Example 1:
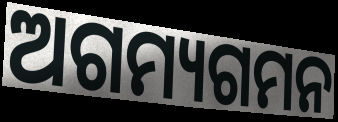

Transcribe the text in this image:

ଅଗମ୍ୟଗମନ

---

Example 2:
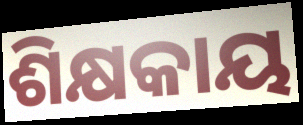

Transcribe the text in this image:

ଶିକ୍ଷକାୟ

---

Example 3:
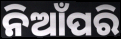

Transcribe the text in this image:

ନିଆଁପରି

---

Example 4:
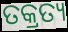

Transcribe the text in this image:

ତକ୍ରତ୍ୟ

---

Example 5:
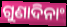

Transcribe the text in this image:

ଗୁଣାଦିନାଂ